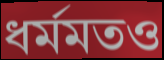
ধর্মমতও